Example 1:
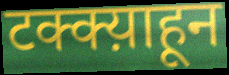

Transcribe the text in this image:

टक्क्य़ाहून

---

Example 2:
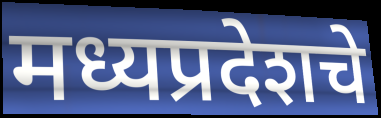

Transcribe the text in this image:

मध्यप्रदेशचे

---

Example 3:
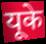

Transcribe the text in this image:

यूके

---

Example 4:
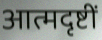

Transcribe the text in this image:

आत्मदृष्टीं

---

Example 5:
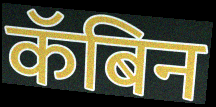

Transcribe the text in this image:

कॅबिन